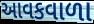
આવકવાળા